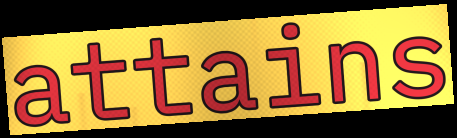
attains